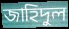
জাহিদুল